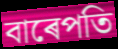
বাৰেপতি